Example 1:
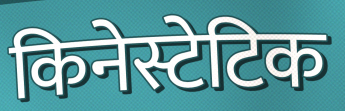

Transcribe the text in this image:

किनेस्टेटिक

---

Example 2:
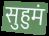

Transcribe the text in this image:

सुहुमं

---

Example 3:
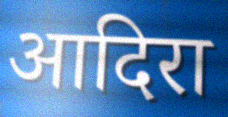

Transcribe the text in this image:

आदिरा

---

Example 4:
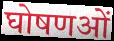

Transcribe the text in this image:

घोषणओं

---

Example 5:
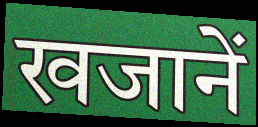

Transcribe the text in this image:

खजानें